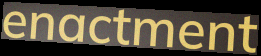
enactment